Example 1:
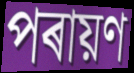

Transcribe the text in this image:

পৰায়ণ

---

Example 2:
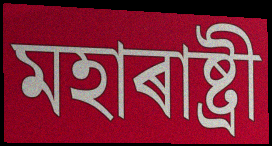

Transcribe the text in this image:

মহাৰাষ্ট্ৰী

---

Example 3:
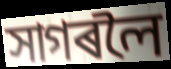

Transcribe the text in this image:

সাগৰলৈ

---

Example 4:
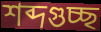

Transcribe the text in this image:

শব্দগুচ্ছ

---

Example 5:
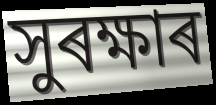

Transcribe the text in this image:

সুৰক্ষাৰ